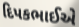
દિપકભાઈએ